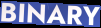
BINARY